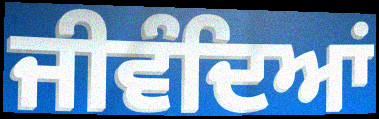
ਜੀਵੰਦਿਆਂ